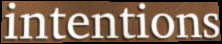
intentions